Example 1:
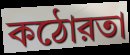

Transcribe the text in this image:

কঠোরতা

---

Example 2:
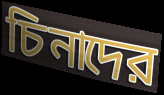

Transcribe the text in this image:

চিনাদের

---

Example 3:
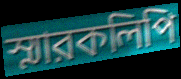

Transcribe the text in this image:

স্মারকলিপি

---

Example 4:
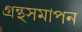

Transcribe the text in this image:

গ্রন্থসমাপন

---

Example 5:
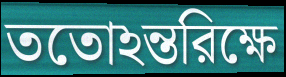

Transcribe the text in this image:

ততোঽন্তরিক্ষে